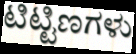
ಟಿಟ್ಟಿಣಗಳು